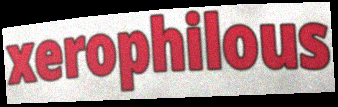
xerophilous